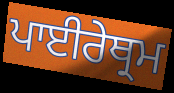
ਪਾਈਰੇਥ੍ਰਮ